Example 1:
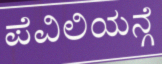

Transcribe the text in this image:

ಪೆವಿಲಿಯನ್ಗೆ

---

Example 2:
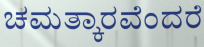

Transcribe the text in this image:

ಚಮತ್ಕಾರವೆಂದರೆ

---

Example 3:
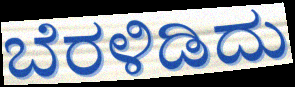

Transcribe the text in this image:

ಬೆರಳಿಡಿದು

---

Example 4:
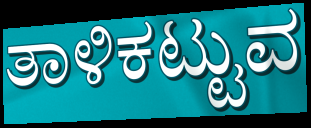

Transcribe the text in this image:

ತಾಳಿಕಟ್ಟುವ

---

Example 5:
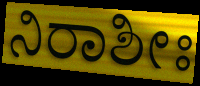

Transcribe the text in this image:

ನಿರಾಶೀಃ